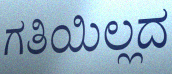
ಗತಿಯಿಲ್ಲದ